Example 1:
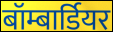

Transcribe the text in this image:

बॉम्बार्डियर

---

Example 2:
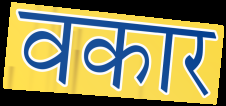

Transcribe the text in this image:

वकार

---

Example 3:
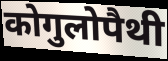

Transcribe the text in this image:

कोगुलोपैथी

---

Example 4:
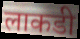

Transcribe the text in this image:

लाकडी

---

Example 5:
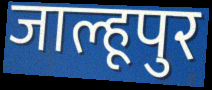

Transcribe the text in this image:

जाल्हूपुर